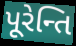
પૂરેન્તિ